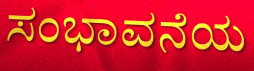
ಸಂಭಾವನೆಯ